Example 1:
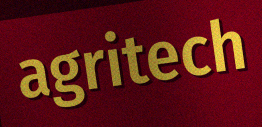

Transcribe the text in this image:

agritech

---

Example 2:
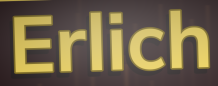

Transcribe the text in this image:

Erlich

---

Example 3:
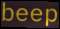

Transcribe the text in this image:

beep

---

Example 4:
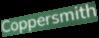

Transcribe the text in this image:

Coppersmith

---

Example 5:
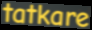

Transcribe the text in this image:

tatkare